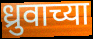
ध्रुवाच्या